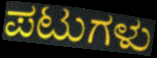
ಪಟುಗಳು